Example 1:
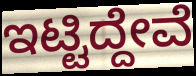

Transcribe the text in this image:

ಇಟ್ಟಿದ್ದೇವೆ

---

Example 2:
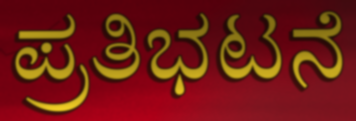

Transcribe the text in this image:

ಪ್ರತಿಭಟನೆ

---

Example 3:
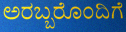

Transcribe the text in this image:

ಅರಬ್ಬರೊಂದಿಗೆ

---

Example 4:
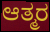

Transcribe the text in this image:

ಆತ್ಮರ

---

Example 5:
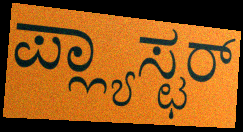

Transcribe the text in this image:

ಪ್ಲ್ಯಾಸ್ಟರ್